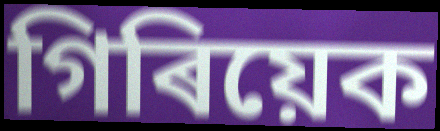
গিৰিয়েক